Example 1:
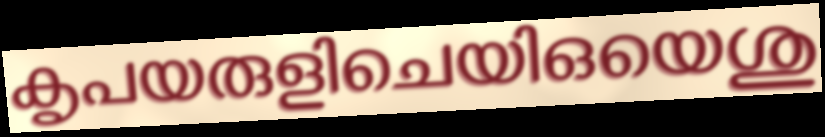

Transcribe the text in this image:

കൃപയരുളിചെയിഒയെശു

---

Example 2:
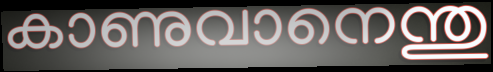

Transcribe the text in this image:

കാണുവാനെന്തു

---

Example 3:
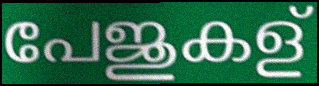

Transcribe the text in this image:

പേജുകള്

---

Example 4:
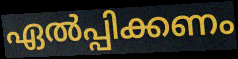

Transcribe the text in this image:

ഏൽപ്പിക്കണം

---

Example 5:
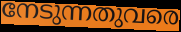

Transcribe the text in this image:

നേടുന്നതുവരെ